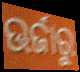
ଊର୍ଜାରୁ